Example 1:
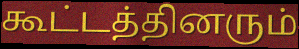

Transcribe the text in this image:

கூட்டத்தினரும்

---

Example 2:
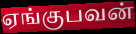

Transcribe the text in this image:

ஏங்குபவன்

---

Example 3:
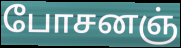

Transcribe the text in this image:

போசனஞ்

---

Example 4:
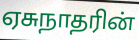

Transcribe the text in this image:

ஏசுநாதரின்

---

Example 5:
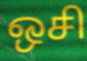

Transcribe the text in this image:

ஒசி